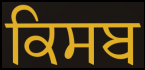
ਕਿਸਬ